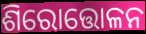
ଶିରୋତ୍ତୋଳନ